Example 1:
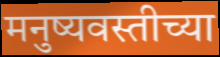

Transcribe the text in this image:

मनुष्यवस्तीच्या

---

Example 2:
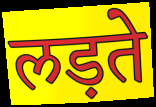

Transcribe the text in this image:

लड़ते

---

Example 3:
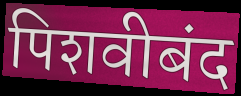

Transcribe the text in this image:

पिशवीबंद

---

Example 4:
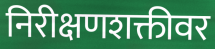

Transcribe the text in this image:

निरीक्षणशक्तीवर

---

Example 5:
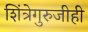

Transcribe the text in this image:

शिंत्रेगुरुजीही